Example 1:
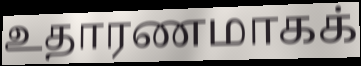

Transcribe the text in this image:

உதாரணமாகக்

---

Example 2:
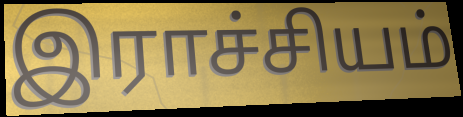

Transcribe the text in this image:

இராச்சியம்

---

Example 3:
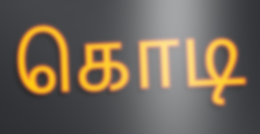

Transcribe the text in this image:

கொடி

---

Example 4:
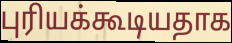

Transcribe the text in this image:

புரியக்கூடியதாக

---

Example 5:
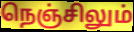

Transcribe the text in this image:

நெஞ்சிலும்